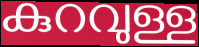
കുറവുള്ള